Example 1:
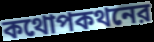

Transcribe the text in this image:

কথোপকথনের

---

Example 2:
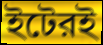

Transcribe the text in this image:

ইটেরই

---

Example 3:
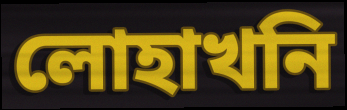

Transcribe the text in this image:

লোহাখনি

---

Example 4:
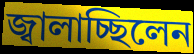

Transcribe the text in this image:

জ্বালাচ্ছিলেন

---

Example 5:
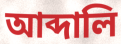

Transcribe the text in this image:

আব্দালি